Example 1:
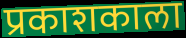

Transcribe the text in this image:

प्रकाशकाला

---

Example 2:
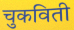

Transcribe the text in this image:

चुकविती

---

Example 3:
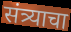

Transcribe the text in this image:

संत्र्याचा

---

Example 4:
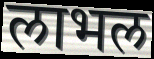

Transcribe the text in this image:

लाभल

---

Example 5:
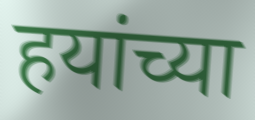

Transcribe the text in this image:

हयांच्या